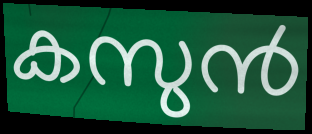
കസുൻ